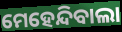
ମେହେନ୍ଦିବାଲା